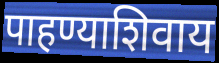
पाहण्याशिवाय